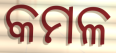
କମଳ